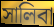
সালিবা